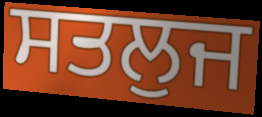
ਸਤਲੁਜ